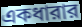
একধারার